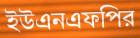
ইউএনএফপির